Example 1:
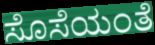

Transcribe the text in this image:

ಸೊಸೆಯಂತೆ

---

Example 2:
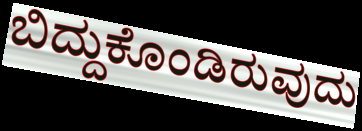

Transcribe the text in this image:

ಬಿದ್ದುಕೊಂಡಿರುವುದು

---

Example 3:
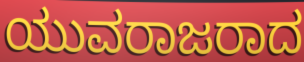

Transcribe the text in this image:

ಯುವರಾಜರಾದ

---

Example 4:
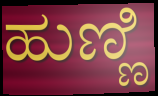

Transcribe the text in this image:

ಹುಣ್ಣಿ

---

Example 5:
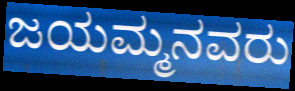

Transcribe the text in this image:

ಜಯಮ್ಮನವರು